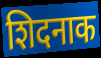
शिदनाक